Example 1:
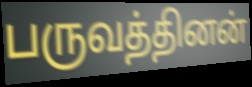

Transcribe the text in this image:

பருவத்தினன்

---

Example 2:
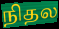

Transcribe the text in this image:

நிதல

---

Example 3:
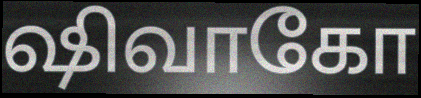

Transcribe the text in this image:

ஷிவாகோ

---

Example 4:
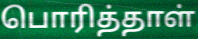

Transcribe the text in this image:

பொரித்தாள்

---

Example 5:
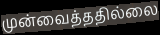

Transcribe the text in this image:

முன்வைத்ததில்லை